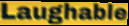
Laughable